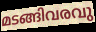
മടങ്ങിവരവു